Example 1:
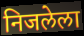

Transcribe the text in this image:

निजलेला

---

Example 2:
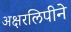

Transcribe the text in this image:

अक्षरलिपीने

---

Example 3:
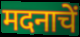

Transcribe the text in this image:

मदनाचें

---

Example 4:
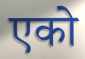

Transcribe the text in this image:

एको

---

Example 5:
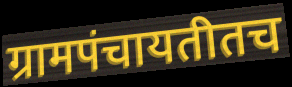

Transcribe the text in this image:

ग्रामपंचायतीतच